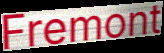
Fremont